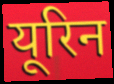
यूरिन